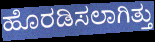
ಹೊರಡಿಸಲಾಗಿತ್ತು